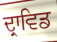
ਦ੍ਰਾਵਿਡ